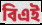
বিএই